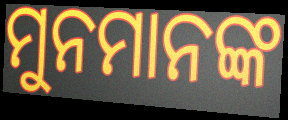
ମୁନମାନଙ୍କ